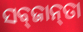
ସବ୍‌ଜାନ୍‌ତା